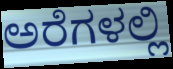
ಅರೆಗಳಲ್ಲಿ